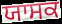
ਯਾਸਕ